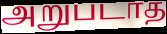
அறுபடாத